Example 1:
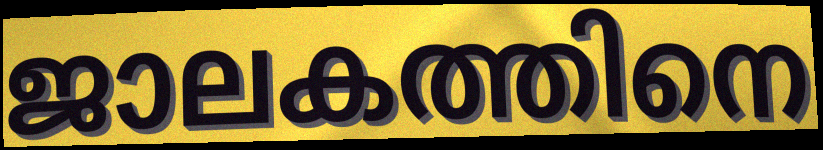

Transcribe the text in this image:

ജാലകത്തിനെ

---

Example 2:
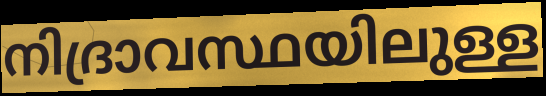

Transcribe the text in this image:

നിദ്രാവസ്ഥയിലുള്ള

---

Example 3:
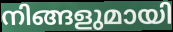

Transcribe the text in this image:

നിങ്ങളുമായി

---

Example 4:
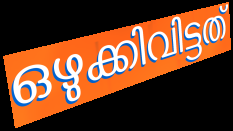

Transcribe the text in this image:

ഒഴുക്കിവിട്ടത്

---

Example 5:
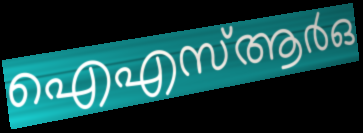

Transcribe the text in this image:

ഐഎസ്ആർഒ